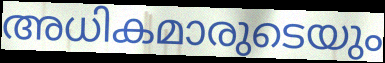
അധികമാരുടെയും